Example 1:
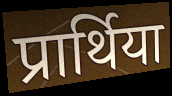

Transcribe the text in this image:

प्रार्थिया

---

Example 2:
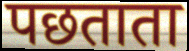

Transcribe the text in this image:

पछताता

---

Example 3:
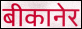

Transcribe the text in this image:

बीकानेर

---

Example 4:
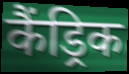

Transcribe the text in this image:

कैंड्रिक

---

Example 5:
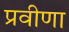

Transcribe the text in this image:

प्रवीणा